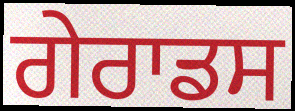
ਗੇਰਾਡਸ